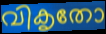
വികൃതോ